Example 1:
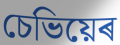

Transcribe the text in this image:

চেভিয়েৰ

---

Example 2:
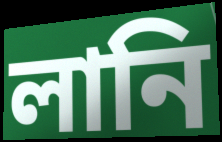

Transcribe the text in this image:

লানি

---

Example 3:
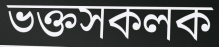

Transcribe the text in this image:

ভক্তসকলক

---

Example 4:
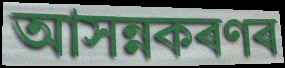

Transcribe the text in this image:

আসন্নকৰণৰ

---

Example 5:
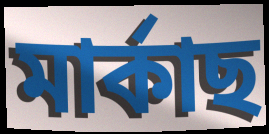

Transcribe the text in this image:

মাৰ্কাছ